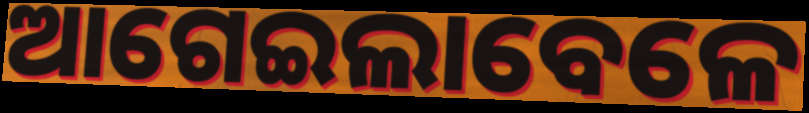
ଆଗେଇଲାବେଳେ